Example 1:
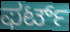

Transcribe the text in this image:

ಫರ್ಟ್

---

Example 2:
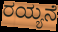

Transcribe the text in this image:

ರಯ್ಯನೆ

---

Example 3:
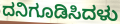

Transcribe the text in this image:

ದನಿಗೂಡಿಸಿದಳು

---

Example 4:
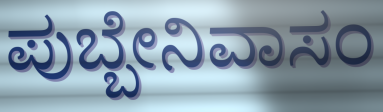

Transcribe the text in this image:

ಪುಬ್ಬೇನಿವಾಸಂ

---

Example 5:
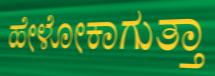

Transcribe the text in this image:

ಹೇಳೋಕಾಗುತ್ತಾ